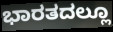
ಭಾರತದಲ್ಲೂ